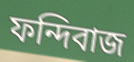
ফন্দিবাজ